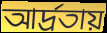
আর্দ্রতায়